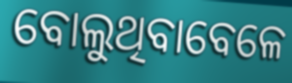
ବୋଲୁଥିବାବେଳେ